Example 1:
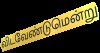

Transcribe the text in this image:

விடவேண்டுமென்று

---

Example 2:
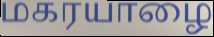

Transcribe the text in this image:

மகரயாழை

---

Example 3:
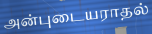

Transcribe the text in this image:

அன்புடையராதல்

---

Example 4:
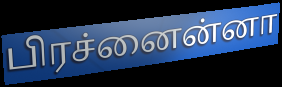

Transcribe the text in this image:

பிரச்னைன்னா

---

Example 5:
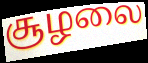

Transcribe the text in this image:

சூழலை